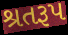
શ્રતરૂપ